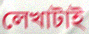
লেখাটাই